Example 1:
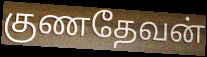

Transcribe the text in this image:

குணதேவன்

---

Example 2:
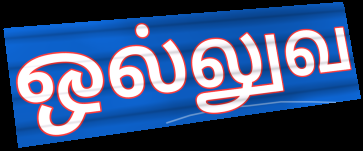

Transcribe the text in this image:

ஒல்லுவ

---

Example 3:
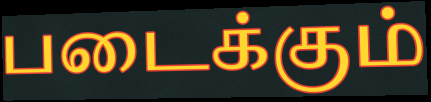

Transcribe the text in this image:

படைக்கும்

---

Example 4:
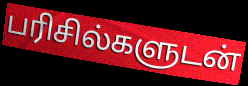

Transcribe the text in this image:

பரிசில்களுடன்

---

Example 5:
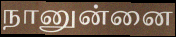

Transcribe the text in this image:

நானுன்னை